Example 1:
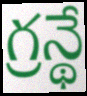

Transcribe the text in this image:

గ్రన్థే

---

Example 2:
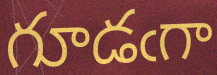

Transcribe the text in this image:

గూడఁగా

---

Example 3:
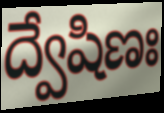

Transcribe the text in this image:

ద్వేషిణః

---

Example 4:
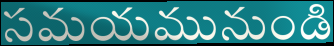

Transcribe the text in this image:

సమయమునుండి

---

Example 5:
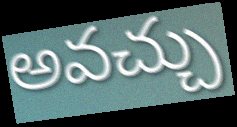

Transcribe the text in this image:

అవచ్చు